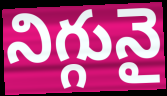
నిగ్గునై